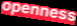
openness